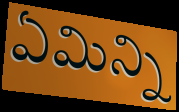
ఏమిన్ని